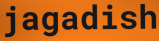
jagadish